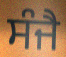
ਸੰਜੈ